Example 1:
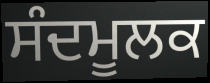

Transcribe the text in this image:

ਸੰਦਮੂਲਕ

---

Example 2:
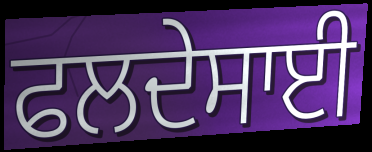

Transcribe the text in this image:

ਫਲਦੇਸਾਈ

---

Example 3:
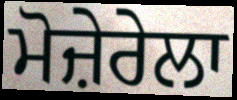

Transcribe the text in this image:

ਮੋਜ਼ੇਰੇਲਾ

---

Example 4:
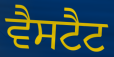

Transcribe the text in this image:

ਵੈਸਟੈਟ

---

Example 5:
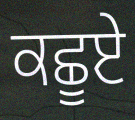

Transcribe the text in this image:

ਕਛੂਏ